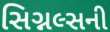
સિગ્નલ્સની